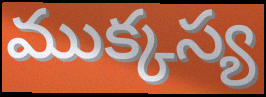
ముక్కస్య